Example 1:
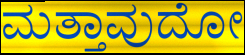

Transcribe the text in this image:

ಮತ್ತಾವುದೋ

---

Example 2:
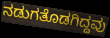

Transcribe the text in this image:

ನಡುಗತೊಡಗಿದ್ದವು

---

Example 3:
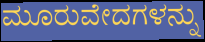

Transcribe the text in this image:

ಮೂರುವೇದಗಳನ್ನು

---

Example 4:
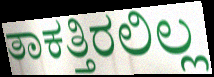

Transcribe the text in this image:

ತಾಕತ್ತಿರಲಿಲ್ಲ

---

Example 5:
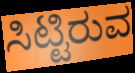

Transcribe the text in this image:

ಸಿಟ್ಟಿರುವ